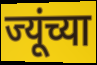
ज्यूंच्या